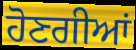
ਹੋਣਗੀਆਂ